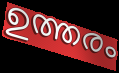
ഉത്തരം